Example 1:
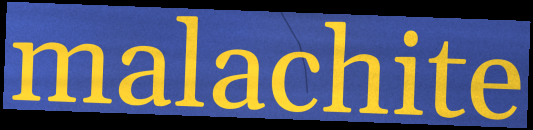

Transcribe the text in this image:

malachite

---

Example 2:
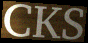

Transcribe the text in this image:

CKS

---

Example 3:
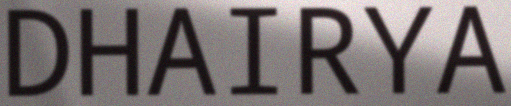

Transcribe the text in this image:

DHAIRYA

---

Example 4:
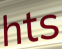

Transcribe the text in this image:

hts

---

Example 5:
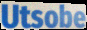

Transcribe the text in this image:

Utsobe